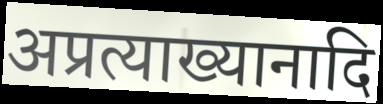
अप्रत्याख्यानादि